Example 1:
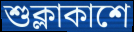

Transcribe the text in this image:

শুক্লাকাশে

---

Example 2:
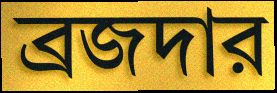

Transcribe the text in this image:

ব্রজদার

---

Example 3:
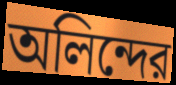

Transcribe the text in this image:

অলিন্দের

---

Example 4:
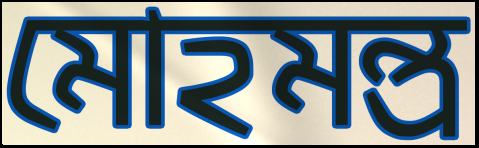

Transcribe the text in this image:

মোহমন্ত্র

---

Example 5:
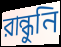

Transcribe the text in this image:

রান্ধুনি